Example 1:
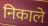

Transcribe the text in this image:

निकाले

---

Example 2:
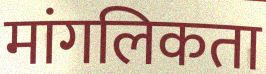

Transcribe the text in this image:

मांगलिकता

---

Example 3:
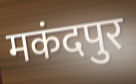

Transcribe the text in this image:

मकंदपुर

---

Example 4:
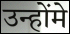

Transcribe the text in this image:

उन्होंमे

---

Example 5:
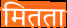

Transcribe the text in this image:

मितता